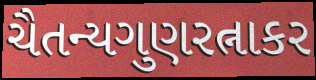
ચૈતન્યગુણરત્નાકર